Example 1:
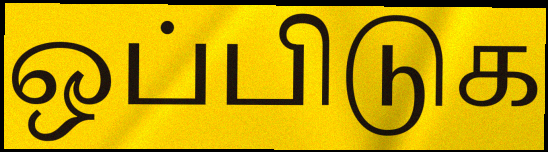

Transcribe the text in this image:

ஒப்பிடுக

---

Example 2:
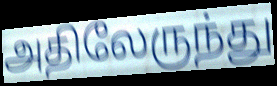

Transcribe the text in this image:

அதிலேருந்து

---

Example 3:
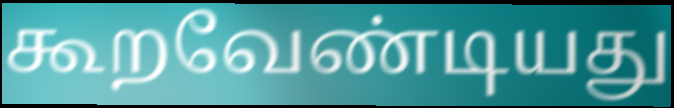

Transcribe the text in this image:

கூறவேண்டியது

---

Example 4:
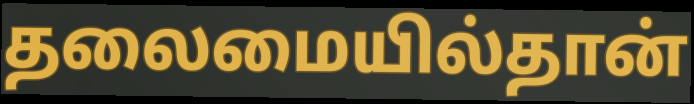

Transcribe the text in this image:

தலைமையில்தான்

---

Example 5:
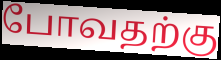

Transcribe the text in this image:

போவதற்கு